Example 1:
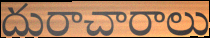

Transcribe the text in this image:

దురాచారాలు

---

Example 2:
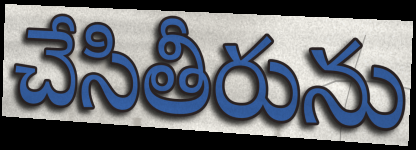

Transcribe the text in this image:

చేసితీరును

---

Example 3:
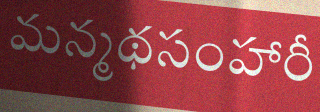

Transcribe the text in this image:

మన్మథసంహారీ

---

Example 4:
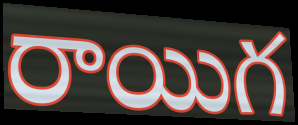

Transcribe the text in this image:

రాయిగ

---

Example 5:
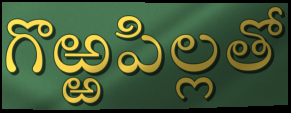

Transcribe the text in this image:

గొఱ్ఱపిల్లతో